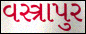
વસ્ત્રાપુર